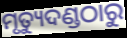
ମୃତ୍ୟୁଦଣ୍ଡଠାରୁ